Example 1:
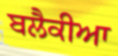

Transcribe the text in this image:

ਬਲੈਕੀਆ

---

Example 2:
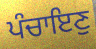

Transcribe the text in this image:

ਪੰਚਾਇਣੁ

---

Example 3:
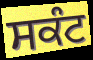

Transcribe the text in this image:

ਸਕੰਟ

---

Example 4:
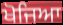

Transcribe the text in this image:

ਖੋਜਿਆ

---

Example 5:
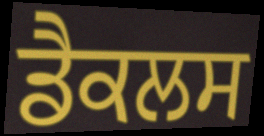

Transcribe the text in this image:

ਡੈਕਲਸ